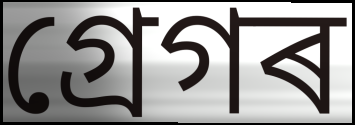
গ্ৰেগৰ